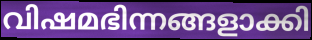
വിഷമഭിന്നങ്ങളാക്കി